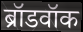
ब्रॉडवॉक